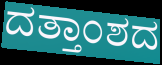
ದತ್ತಾಂಶದ